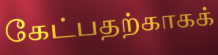
கேட்பதற்காகக்